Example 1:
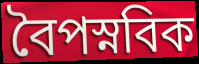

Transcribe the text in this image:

বৈপস্নবিক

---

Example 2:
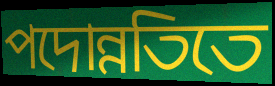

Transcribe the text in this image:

পদোন্নতিতে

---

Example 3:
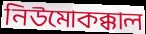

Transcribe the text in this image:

নিউমোকক্কাল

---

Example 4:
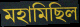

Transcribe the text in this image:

মহামিছিল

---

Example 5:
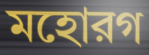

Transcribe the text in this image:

মহোরগ